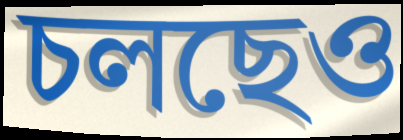
চলছেও